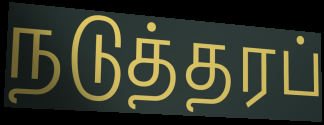
நடுத்தரப்